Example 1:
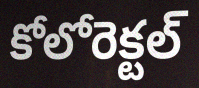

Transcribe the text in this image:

కోలోరెక్టల్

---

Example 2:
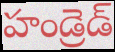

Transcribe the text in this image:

హండ్రెడ్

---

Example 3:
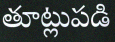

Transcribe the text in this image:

తూట్లుపడి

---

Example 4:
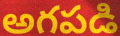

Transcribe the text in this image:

అగపడి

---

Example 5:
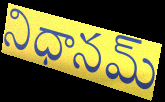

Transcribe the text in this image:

నిధానమ్